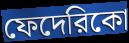
ফেদেরিকো